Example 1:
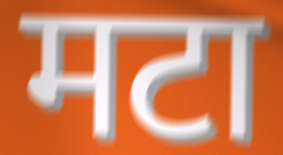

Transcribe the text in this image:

मटा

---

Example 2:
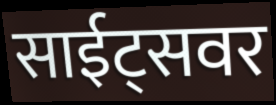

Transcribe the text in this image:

साईट्सवर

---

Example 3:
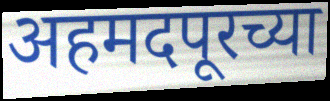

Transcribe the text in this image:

अहमदपूरच्या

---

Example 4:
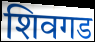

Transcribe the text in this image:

शिवगड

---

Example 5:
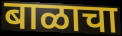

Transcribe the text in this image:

बाळाचा